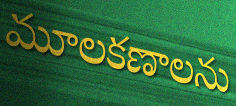
మూలకణాలను